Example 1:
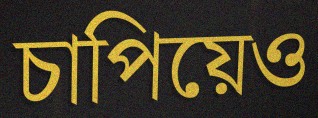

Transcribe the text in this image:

চাপিয়েও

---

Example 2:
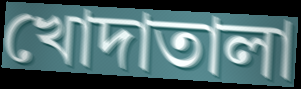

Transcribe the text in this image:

খোদাতালা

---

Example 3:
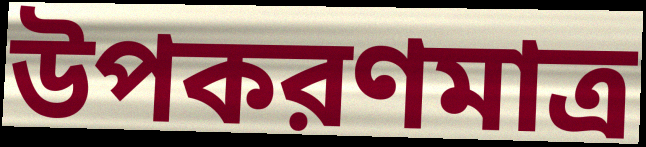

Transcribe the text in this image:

উপকরণমাত্র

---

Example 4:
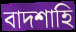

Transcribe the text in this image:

বাদশাহি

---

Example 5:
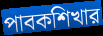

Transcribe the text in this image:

পাবকশিখার